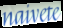
naivete